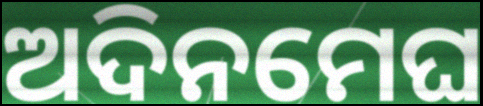
ଅଦିନମେଘ